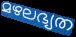
മഴലഭ്യത